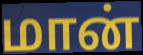
மான்